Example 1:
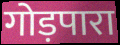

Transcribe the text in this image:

गोड़पारा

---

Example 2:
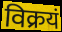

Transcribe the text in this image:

विक्रयं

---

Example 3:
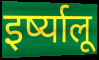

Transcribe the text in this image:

इर्ष्यालू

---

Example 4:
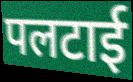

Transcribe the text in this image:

पलटाई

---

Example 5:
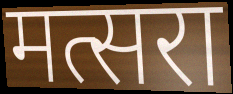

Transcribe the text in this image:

मत्सरा